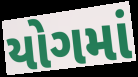
યોગમાં